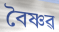
বৈষ্ণৱ